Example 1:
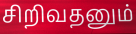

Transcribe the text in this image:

சிறிவதனும்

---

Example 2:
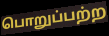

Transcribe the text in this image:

பொறுப்பற்ற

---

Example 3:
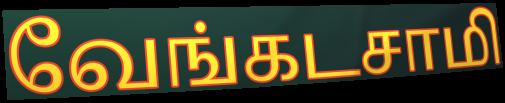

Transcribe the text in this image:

வேங்கடசாமி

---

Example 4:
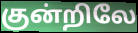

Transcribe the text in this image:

குன்றிலே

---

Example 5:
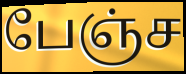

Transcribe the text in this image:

பேஞ்ச